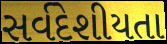
સર્વદેશીયતા